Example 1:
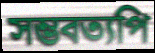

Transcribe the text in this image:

সম্ভবত্যপি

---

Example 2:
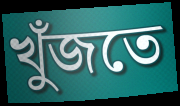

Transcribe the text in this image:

খুঁজতে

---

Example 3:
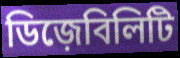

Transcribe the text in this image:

ডিজ়েবিলিটি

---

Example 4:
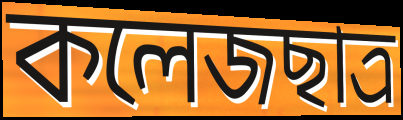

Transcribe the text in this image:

কলেজছাত্র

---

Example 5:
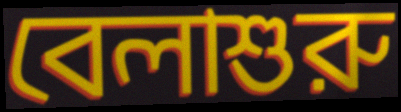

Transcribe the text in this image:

বেলাশুরু